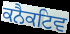
ਕਨੈਕਟਿਵ